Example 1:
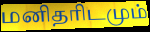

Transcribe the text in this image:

மனிதரிடமும்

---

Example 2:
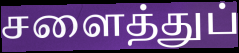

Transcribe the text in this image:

சளைத்துப்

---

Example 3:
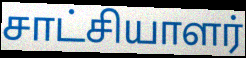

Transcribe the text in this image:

சாட்சியாளர்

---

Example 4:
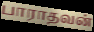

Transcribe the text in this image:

பாராதவன்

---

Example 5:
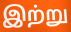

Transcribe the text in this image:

இற்று